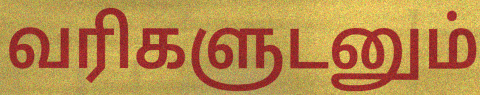
வரிகளுடனும்